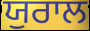
ਯੁਰਾਲ